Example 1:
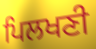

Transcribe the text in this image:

ਪਿਲਖਣੀ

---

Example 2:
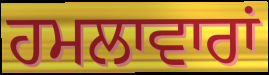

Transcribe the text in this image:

ਹਮਲਾਵਾਰਾਂ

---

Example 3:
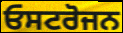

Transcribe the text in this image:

ਓਸਟਰੋਜਨ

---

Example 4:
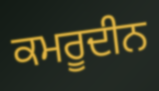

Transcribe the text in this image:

ਕਮਰੂਦੀਨ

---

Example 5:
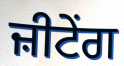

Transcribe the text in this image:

ਜ਼ੀਟੇਂਗ